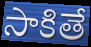
సాకితే